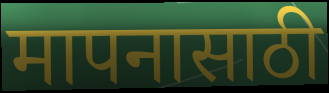
मापनासाठी